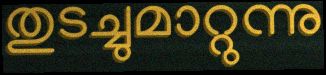
തുടച്ചുമാറ്റുന്നു